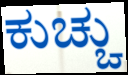
ಕುಚ್ಚು